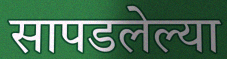
सापडलेल्या